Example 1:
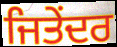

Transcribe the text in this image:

ਜਿਤੇਂਦਰ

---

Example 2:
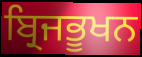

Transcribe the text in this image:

ਬ੍ਰਿਜਭੂਖਨ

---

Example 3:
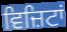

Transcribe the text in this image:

ਵਿਜ਼ਿਟਾਂ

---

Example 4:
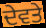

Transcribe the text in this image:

ਦੇਵਤੇ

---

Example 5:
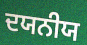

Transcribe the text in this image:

ਦਯਨੀਯ